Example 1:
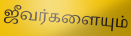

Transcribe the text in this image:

ஜீவர்களையும்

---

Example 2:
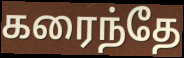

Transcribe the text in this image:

கரைந்தே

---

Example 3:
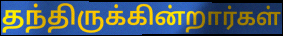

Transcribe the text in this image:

தந்திருக்கின்றார்கள்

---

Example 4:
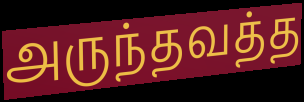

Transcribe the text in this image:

அருந்தவத்த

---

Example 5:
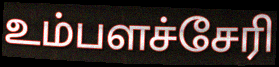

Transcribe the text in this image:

உம்பளச்சேரி